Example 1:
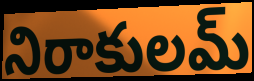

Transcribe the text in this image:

నిరాకులమ్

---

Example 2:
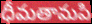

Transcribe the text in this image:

ధీమతామపి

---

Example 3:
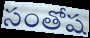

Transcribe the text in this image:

సంతోష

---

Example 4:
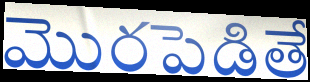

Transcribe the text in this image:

మొరపెడితే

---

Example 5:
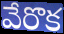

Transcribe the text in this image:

వేరొక